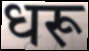
धरू